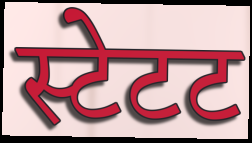
स्टेटट